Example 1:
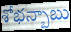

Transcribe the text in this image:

శోభన్బాబు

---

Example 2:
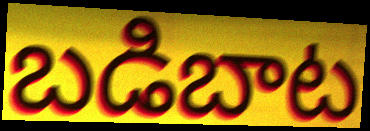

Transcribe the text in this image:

బడిబాట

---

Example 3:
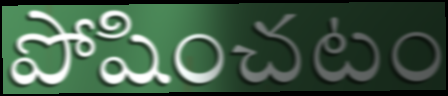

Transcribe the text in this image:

పోషించటం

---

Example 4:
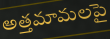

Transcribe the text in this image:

అత్తమామలపై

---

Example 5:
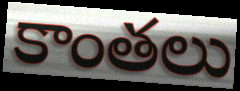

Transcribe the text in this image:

కాంతలు